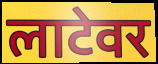
लाटेवर